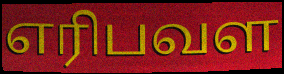
எரிபவள